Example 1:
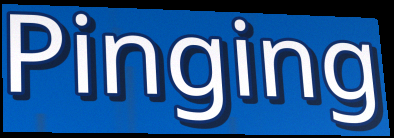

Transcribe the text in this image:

Pinging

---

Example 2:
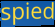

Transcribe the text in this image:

spied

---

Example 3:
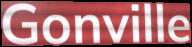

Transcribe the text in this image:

Gonville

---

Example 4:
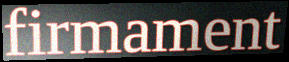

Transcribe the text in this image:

firmament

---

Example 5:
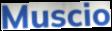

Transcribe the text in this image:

Muscio